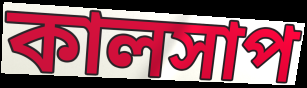
কালসাপ